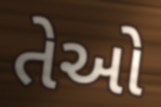
તેઓે